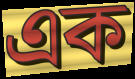
এক